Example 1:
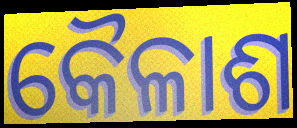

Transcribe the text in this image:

କୈଳାଶ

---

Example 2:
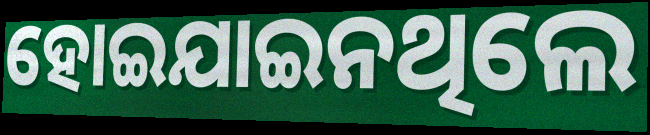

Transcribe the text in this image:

ହୋଇଯାଇନଥିଲେ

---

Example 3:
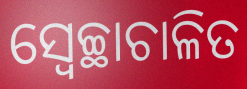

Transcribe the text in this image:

ସ୍ୱେଚ୍ଛାଚାଳିତ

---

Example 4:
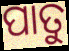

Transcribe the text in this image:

ପାତୁ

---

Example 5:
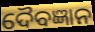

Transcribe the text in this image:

ଦୈବଜ୍ଞାନ